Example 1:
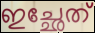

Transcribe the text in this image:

ഇച്ഛേത്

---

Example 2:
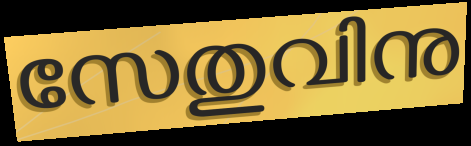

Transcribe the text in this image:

സേതുവിനു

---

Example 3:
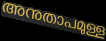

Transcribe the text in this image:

അനുതാപമുള്ള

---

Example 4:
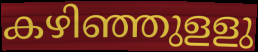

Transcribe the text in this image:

കഴിഞ്ഞുളളു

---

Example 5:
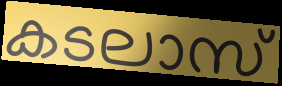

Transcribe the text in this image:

കടലാസ്